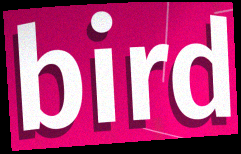
bird